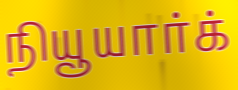
நியூயார்க்